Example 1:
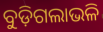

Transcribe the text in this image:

ବୁଡ଼ିଗଲାଭଳି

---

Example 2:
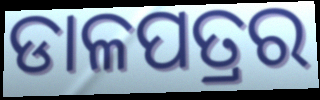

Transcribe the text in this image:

ଡାଳପତ୍ରର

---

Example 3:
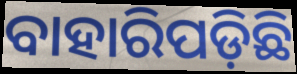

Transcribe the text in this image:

ବାହାରିପଡ଼ିଛି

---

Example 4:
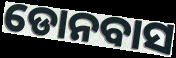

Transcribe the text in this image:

ଡୋନବାସ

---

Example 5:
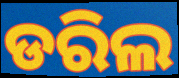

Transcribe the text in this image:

ଡରିଲ